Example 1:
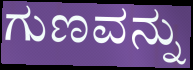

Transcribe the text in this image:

ಗುಣವನ್ನು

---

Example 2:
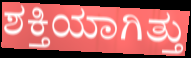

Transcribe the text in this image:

ಶಕ್ತಿಯಾಗಿತ್ತು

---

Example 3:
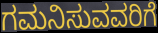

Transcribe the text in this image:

ಗಮನಿಸುವವರಿಗೆ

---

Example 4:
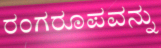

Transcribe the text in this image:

ರಂಗರೂಪವನ್ನು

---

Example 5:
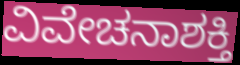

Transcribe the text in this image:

ವಿವೇಚನಾಶಕ್ತಿ